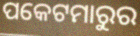
ପକେଟମାରୁର